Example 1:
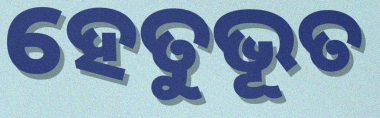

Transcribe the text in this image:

ହେତୁଭୂତ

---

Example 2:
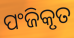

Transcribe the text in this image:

ପଂଜିକୃତ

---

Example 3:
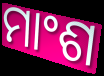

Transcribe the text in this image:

ମାଂଶ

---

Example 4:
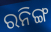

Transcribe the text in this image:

ରନିଙ୍ଗ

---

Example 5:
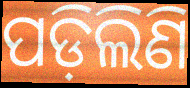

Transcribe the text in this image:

ପଡ଼ିଲିଣି